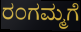
ರಂಗಮ್ಮಗೆ